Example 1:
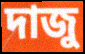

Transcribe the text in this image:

দাজু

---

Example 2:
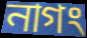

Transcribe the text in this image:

নাগং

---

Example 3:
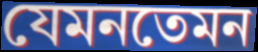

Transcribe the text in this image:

যেমনতেমন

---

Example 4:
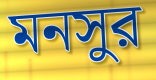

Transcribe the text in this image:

মনসুর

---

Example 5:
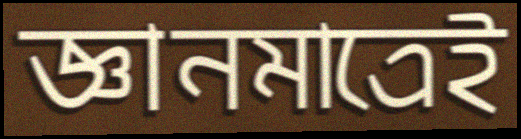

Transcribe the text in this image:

জ্ঞানমাত্রেই